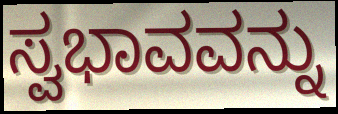
ಸ್ವಭಾವವನ್ನು